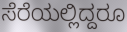
ಸೆರೆಯಲ್ಲಿದ್ದರೂ